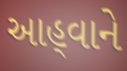
આહ્‌વાને